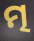
ତ୍ମ